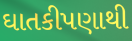
ઘાતકીપણાથી